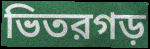
ভিতরগড়